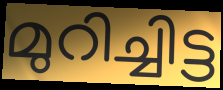
മുറിച്ചിട്ട